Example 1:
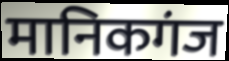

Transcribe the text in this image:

मानिकगंज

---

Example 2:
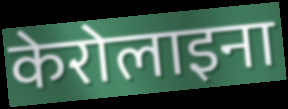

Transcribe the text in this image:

केरोलाइना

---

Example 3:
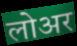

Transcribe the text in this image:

लोअर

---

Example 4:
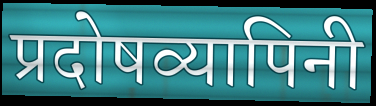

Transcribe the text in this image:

प्रदोषव्यापिनी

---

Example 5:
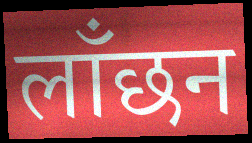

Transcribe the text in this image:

लाँछन